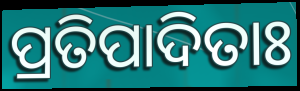
ପ୍ରତିପାଦିତାଃ